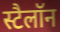
स्टैलॉन